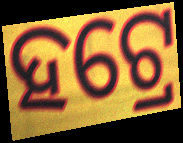
ହଟ୍ରେ